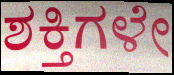
ಶಕ್ತಿಗಳೇ